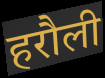
हरौली